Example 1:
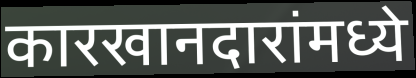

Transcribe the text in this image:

कारखानदारांमध्ये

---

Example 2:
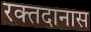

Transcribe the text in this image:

रक्तदानास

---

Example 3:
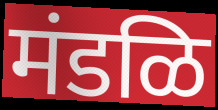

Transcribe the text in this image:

मंडळि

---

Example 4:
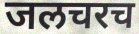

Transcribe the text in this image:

जलचरच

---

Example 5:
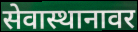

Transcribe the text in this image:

सेवास्थानावर